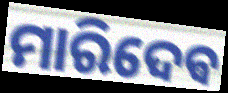
ମାରିଦେଵ